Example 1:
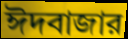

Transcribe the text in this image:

ঈদবাজার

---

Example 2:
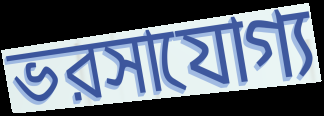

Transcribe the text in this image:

ভরসাযোগ্য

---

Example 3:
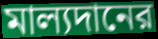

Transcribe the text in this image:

মাল্যদানের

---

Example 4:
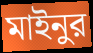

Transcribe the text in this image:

মাইনুর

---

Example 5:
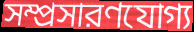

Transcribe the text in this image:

সম্প্রসারণযোগ্য